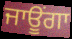
ਜਾਊਂਗਾ